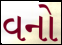
વનો